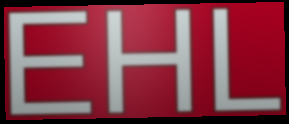
EHL